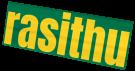
rasithu